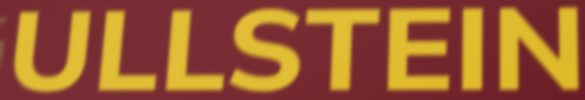
ULLSTEIN